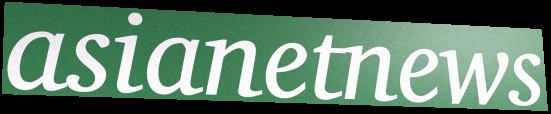
asianetnews